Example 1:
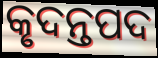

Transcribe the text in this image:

କୃଦନ୍ତପଦ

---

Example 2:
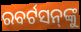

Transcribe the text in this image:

ରବର୍ଟସନ୍‌ଙ୍କୁ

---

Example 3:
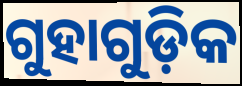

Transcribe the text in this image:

ଗୁହାଗୁଡ଼ିକ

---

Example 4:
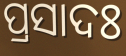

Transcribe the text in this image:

ପ୍ରସାଦଃ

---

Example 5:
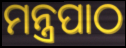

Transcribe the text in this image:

ମନ୍ତ୍ରପାଠ